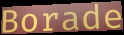
Borade